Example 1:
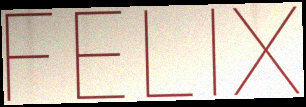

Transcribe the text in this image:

FELIX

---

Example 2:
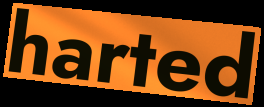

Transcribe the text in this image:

harted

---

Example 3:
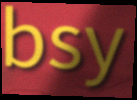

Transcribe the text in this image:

bsy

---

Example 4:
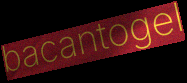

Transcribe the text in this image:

bacantogel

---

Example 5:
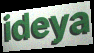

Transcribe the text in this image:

ideya